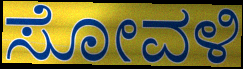
ಸೋವಳಿ